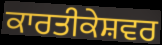
ਕਾਰਤੀਕੇਸ਼ਵਰ